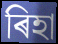
ৰিহা